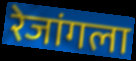
रेजांगला